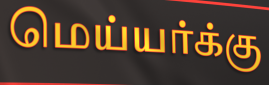
மெய்யர்க்கு